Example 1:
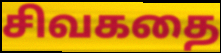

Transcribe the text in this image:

சிவகதை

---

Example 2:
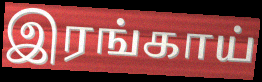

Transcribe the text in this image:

இரங்காய்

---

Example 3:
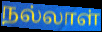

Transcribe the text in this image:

நல்லாள்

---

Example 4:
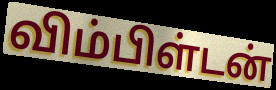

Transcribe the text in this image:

விம்பிள்டன்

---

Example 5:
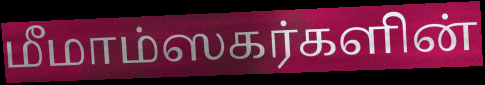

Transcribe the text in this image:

மீமாம்ஸகர்களின்